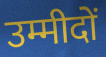
उम्मीदों